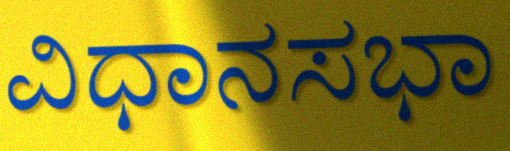
ವಿಧಾನಸಭಾ